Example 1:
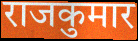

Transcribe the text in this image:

राजकुमार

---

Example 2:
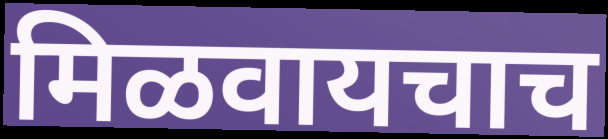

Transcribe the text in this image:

मिळवायचाच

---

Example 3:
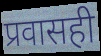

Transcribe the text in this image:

प्रवासही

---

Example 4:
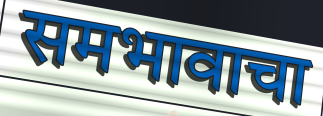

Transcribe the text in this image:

समभावाचा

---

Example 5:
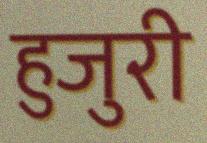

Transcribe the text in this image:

हुजुरी